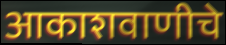
आकाशवाणीचे